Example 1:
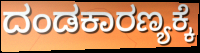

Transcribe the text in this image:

ದಂಡಕಾರಣ್ಯಕ್ಕೆ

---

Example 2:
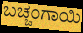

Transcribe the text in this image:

ಬಚ್ಚಂಗಾಯಿ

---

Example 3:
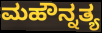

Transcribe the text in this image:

ಮಹೌನ್ನತ್ಯ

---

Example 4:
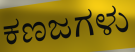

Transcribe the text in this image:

ಕಣಜಗಳು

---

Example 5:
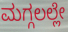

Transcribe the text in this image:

ಮಗ್ಗಲಲ್ಲೇ